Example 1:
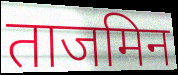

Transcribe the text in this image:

ताजमिन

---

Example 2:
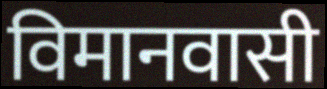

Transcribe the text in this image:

विमानवासी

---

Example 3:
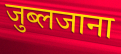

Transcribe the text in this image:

जुब्लजाना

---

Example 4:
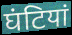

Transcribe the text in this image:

घंटियां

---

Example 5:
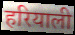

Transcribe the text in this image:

हरियाली